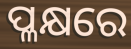
ପ୍ଳକ୍ଷରେ